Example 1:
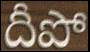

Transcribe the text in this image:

దీపో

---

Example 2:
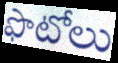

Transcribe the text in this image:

ఫొటోలు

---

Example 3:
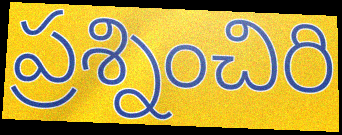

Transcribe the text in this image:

ప్రశ్నించిరి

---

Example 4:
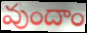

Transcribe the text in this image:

వుందాం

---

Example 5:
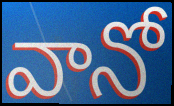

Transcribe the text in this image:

వానో